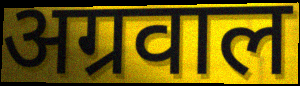
अग्रवाल